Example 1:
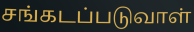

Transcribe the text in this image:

சங்கடப்படுவாள்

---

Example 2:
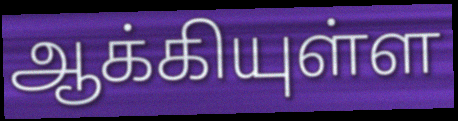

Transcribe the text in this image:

ஆக்கியுள்ள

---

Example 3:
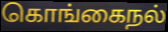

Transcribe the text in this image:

கொங்கைநல்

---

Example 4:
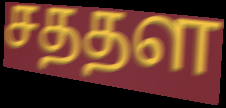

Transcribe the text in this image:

சததள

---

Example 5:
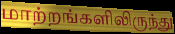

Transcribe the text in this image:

மாற்றங்களிலிருந்து